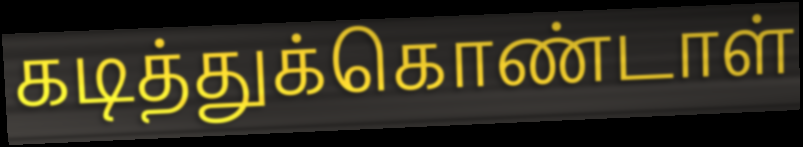
கடித்துக்கொண்டாள்